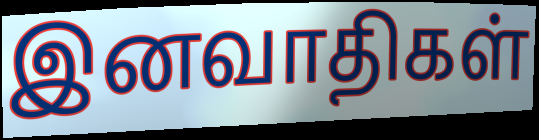
இனவாதிகள்